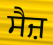
ਸੈਜ਼